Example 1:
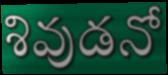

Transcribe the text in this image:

శివుడనో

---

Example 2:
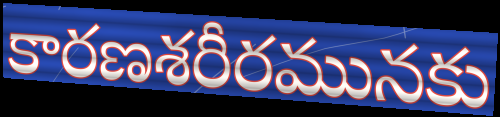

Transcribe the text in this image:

కారణశరీరమునకు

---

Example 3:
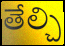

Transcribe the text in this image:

తేల్చి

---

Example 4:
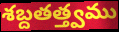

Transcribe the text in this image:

శబ్దతత్త్వము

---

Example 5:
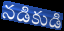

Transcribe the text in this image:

నడికుడి